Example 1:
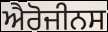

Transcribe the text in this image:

ਐਰੋਜੀਨਸ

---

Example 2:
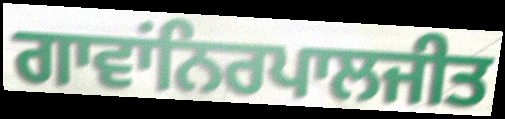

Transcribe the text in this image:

ਗਾਵਾਂਨਿਰਪਾਲਜੀਤ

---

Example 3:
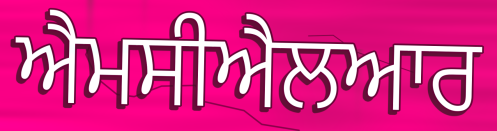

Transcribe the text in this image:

ਐਮਸੀਐਲਆਰ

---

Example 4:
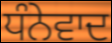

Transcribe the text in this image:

ਧੰਨੇਵਾਦ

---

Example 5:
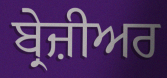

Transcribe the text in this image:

ਬ੍ਰੇਜ਼ੀਅਰ